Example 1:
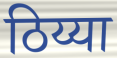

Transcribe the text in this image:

ठिय्या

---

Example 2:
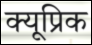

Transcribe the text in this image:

क्यूप्रिक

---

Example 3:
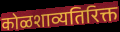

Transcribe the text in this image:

कोळशाव्यतिरिक्त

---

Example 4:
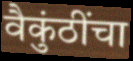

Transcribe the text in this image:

वैकुंठींचा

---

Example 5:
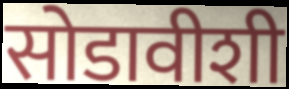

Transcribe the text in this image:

सोडावीशी